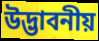
উদ্ভাবনীয়